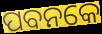
ପବନକେ